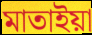
মাতাইয়া